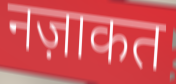
नज़ाकत